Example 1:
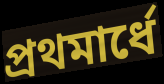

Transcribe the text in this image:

প্রথমার্ধে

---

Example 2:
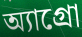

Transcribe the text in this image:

অ্যাগ্রো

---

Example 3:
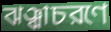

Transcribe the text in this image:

ঝঞ্ঝাচরণে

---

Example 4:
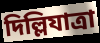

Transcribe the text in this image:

দিল্লিযাত্রা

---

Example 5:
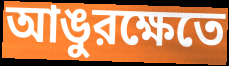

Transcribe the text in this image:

আঙুরক্ষেতে